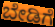
ಬೇಡಿಗೆ